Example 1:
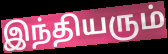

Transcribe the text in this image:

இந்தியரும்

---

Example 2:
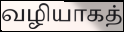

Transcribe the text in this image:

வழியாகத்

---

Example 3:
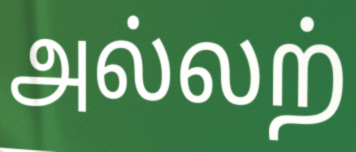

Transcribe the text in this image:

அல்லற்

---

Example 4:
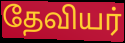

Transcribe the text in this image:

தேவியர்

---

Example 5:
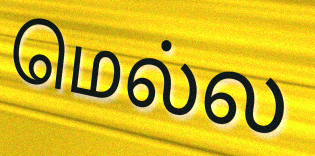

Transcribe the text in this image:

மெல்ல